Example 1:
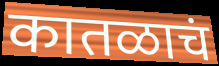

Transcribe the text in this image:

कातळाचं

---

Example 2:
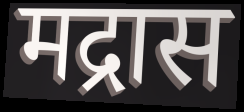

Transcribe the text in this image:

मद्रास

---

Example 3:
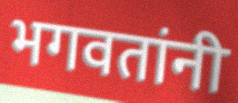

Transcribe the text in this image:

भगवतांनी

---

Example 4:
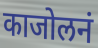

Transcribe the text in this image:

काजोलनं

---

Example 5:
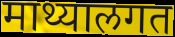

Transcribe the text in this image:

माथ्यालगत